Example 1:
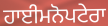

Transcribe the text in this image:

ਹਾਈਮਨੋਪਟੇਰਾ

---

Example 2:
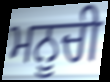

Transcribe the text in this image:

ਮਨੂਚੀ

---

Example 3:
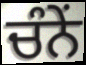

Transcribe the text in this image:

ਚੰਨੇਂ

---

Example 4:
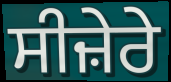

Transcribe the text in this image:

ਸੀਜ਼ੇਰੇ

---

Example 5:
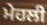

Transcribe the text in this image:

ਮੇਹਲੀ